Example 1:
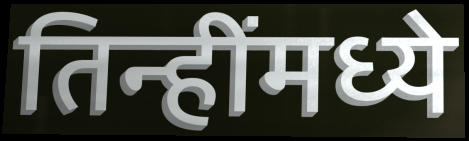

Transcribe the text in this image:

तिन्हींमध्ये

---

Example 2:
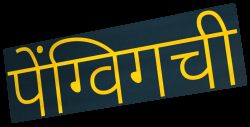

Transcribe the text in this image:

पेंग्विगची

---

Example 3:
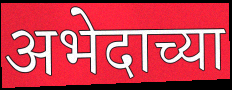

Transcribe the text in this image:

अभेदाच्या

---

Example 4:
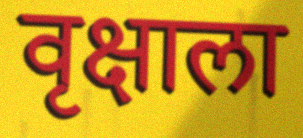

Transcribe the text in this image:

वृक्षाला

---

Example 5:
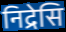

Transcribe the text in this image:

निद्रेसि